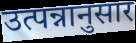
उत्पन्नानुसार